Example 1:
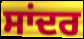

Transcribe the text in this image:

ਸਾਂਦਰ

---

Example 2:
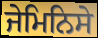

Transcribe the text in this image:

ਜੇਮਿਨਿਸੇ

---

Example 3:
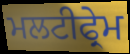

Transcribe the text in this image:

ਮਲਟੀਫ੍ਰੇਮ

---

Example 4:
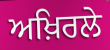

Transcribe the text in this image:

ਅਖ਼ਿਰਲੇ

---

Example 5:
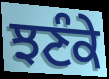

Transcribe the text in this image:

ਝਣੰਕੇ